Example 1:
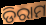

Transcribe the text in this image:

ଡିରାମ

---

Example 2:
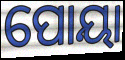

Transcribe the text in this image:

ପୋୟା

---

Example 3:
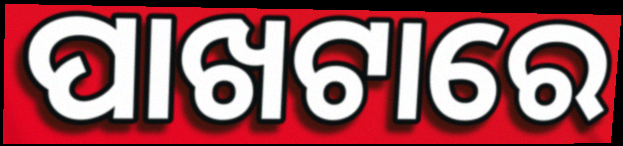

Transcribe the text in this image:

ପାଖଟାରେ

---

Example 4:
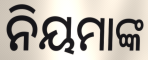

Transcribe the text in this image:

ନିୟମାଙ୍କ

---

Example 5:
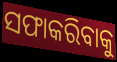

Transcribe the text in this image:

ସଫାକରିବାକୁ